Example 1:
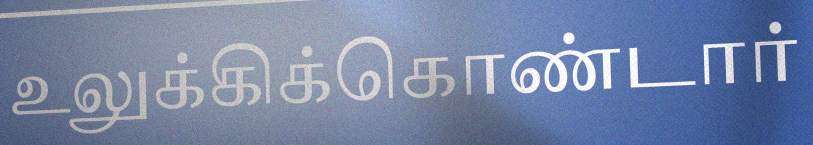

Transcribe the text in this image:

உலுக்கிக்கொண்டார்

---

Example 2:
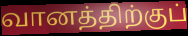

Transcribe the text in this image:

வானத்திற்குப்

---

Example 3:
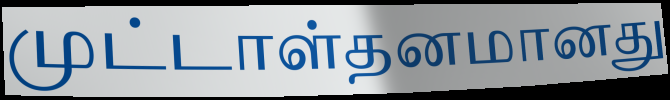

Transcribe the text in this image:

முட்டாள்தனமானது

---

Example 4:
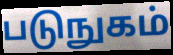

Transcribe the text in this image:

படுநுகம்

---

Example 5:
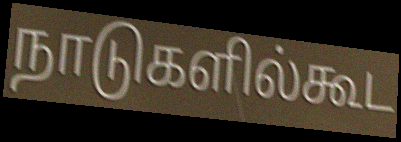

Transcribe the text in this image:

நாடுகளில்கூட